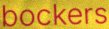
bockers